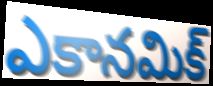
ఎకానమిక్